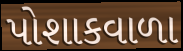
પોશાકવાળા